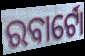
ରବାର୍ଟୋ